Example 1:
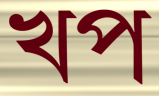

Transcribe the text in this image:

খপ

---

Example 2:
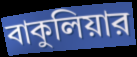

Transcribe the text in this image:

বাকুলিয়ার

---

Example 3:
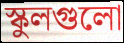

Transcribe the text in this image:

স্কুলগুলো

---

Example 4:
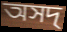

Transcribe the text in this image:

অসদ্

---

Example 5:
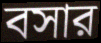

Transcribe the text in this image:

বসার